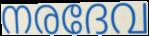
നരദേവ